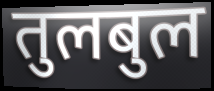
तुलबुल